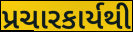
પ્રચારકાર્યથી